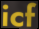
icf